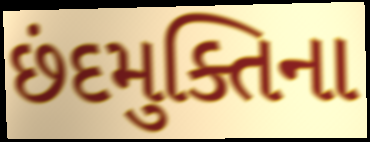
છંદમુક્તિના